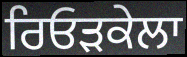
ਰਿਓੜਕੇਲਾ